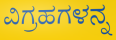
ವಿಗ್ರಹಗಳನ್ನ